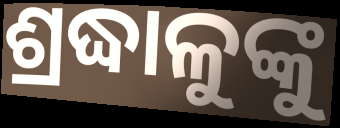
ଶ୍ରଦ୍ଧାଳୁଙ୍କୁ